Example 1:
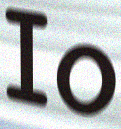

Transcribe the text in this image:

Io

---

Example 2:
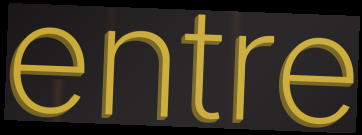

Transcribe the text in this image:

entre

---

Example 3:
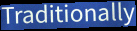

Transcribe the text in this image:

Traditionally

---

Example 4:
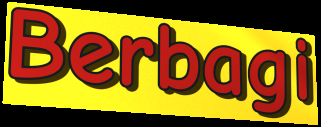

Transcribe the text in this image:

Berbagi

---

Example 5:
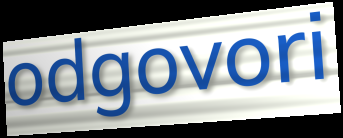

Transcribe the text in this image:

odgovori